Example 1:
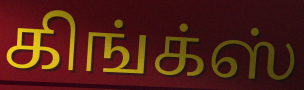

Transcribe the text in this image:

கிங்க்ஸ்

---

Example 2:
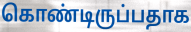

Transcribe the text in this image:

கொண்டிருப்பதாக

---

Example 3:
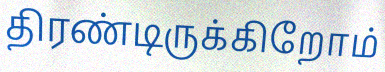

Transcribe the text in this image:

திரண்டிருக்கிறோம்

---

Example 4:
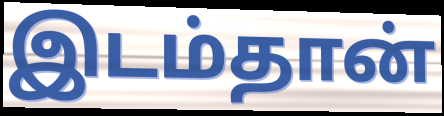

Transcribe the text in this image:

இடம்தான்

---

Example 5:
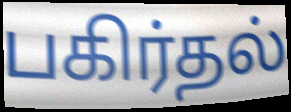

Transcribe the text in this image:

பகிர்தல்